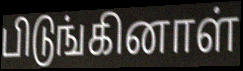
பிடுங்கினாள்